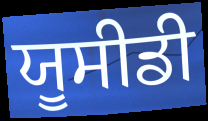
ਯੂਸੀਡੀ